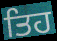
ਤਿਹ